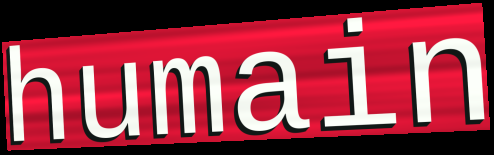
humain